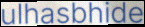
ulhasbhide